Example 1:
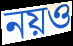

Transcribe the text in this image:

নয়ও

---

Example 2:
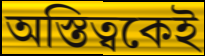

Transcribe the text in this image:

অস্তিত্বকেই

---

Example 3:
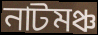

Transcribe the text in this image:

নাটমঞ্চ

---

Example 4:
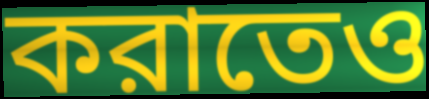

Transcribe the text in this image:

করাতেও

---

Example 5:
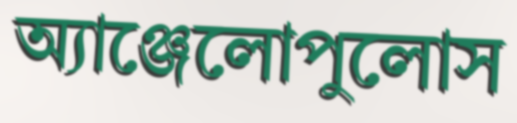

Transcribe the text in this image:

অ্যাঞ্জেলোপুলোস